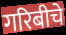
गरिबीचे